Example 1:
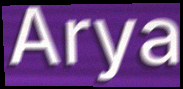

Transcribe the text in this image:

Arya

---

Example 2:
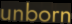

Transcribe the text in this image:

unborn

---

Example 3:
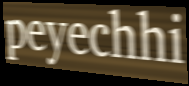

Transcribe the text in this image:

peyechhi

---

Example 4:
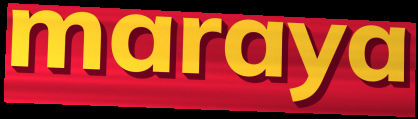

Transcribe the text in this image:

maraya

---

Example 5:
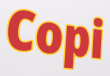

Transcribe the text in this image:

Copi